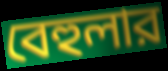
বেহুলার